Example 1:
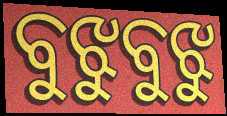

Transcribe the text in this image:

ବୁଝୁବୁଝୁ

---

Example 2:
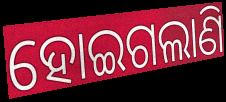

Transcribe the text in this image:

ହୋଇଗଲାଣି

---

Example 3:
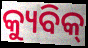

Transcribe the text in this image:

କ୍ୟୁବିକ୍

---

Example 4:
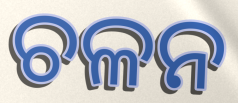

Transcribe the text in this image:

ଚଳନ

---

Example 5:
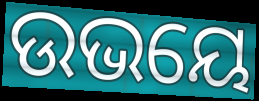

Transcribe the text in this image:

ଉଭୟେ